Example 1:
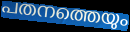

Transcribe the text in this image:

പതനത്തെയും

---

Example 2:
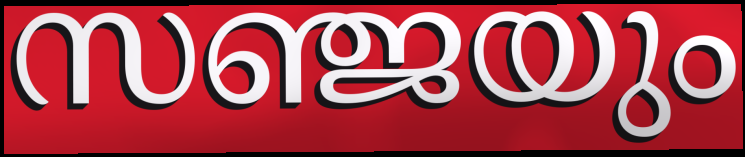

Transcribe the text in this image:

സഞ്ജയും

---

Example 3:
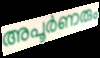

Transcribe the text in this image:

അപൂർണരും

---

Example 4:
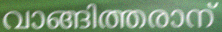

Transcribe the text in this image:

വാങ്ങിത്തരാന്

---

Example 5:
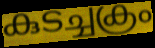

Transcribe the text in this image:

കുടച്ചക്രം